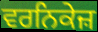
ਵਰਨਿਕੇਜ਼